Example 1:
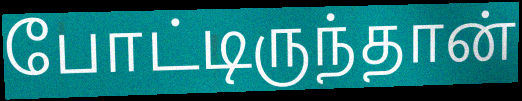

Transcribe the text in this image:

போட்டிருந்தான்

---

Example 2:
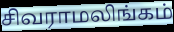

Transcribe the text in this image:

சிவராமலிங்கம்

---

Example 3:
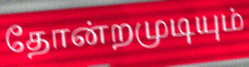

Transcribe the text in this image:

தோன்றமுடியும்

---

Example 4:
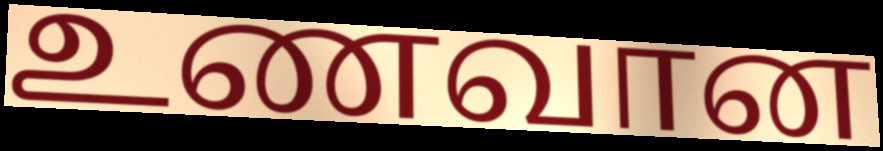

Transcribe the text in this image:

உணவான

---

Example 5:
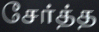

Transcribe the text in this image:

சேர்த்த